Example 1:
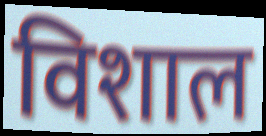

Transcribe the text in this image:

विशाल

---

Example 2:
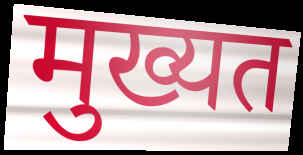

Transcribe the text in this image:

मुख्यत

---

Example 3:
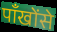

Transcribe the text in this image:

पाँखोंसे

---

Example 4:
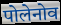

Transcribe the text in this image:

पोलेनोव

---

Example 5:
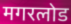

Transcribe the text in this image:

मगरलोड